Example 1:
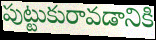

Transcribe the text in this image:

పుట్టుకురావడానికి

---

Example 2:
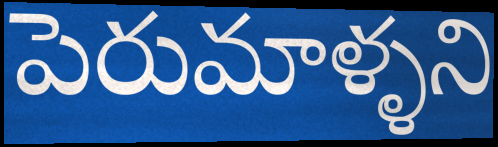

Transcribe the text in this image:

పెరుమాళ్ళని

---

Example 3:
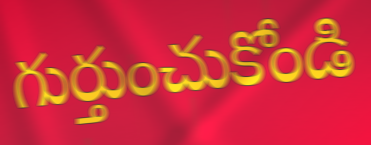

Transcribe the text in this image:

గుర్తుంచుకోండి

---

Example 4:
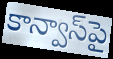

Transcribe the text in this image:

కాన్వాస్‌పై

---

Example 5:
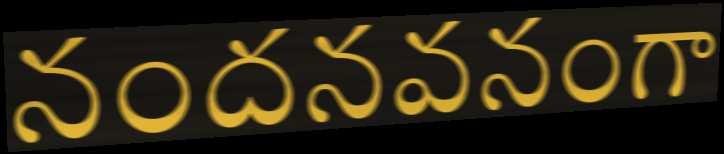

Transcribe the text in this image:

నందనవనంగా